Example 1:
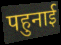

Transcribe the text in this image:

पहुनाई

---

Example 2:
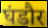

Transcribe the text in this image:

घंडौर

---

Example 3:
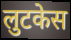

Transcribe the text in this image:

लुटकेस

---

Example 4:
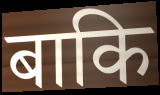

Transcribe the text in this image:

बाकि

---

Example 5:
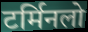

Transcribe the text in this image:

टर्मिनलो